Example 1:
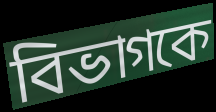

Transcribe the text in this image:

বিভাগকে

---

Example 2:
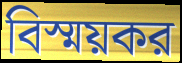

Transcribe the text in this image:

বিস্ময়কর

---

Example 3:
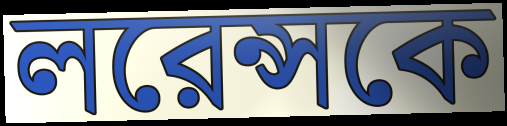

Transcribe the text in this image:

লরেন্সকে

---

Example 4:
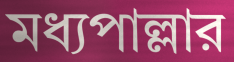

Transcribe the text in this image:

মধ্যপাল্লার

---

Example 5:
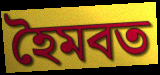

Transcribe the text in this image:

হৈমবত